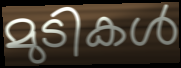
മുടികൾ